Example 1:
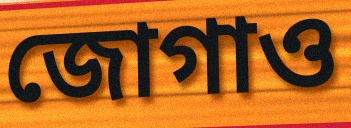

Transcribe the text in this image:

জোগাও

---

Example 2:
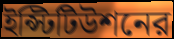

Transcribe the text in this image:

ইন্স্টিটিউশনের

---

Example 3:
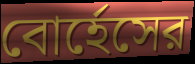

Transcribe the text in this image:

বোর্হেসের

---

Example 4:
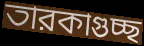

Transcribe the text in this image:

তারকাগুচ্ছ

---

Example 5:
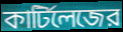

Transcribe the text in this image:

কার্টিলেজের